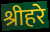
श्रीहरे